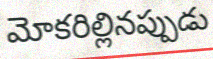
మోకరిల్లినప్పుడు